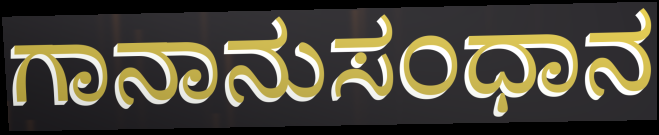
ಗಾನಾನುಸಂಧಾನ